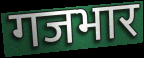
गजभार